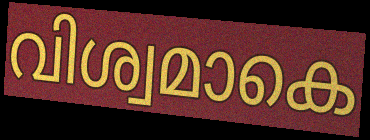
വിശ്വമാകെ